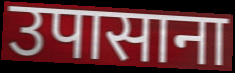
उपासाना